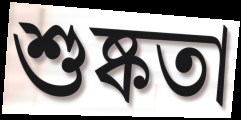
শুষ্কতা